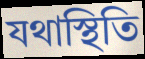
যথাস্থিতি